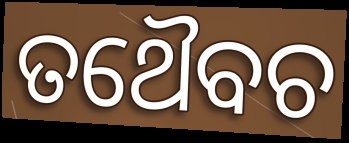
ତଥୈବଚ